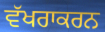
ਵੱਖਰਾਕਰਨ